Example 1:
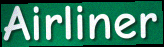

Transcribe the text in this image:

Airliner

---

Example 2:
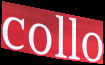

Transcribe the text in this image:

collo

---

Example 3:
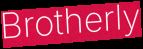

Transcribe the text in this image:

Brotherly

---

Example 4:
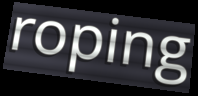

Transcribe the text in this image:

roping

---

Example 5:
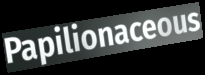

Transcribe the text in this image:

Papilionaceous